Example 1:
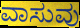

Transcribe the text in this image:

ವಾಸುವು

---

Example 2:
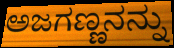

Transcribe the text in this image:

ಅಜಗಣ್ಣನನ್ನು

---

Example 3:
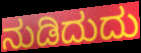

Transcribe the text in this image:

ನುಡಿದುದು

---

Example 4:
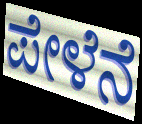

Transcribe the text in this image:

ಪೇಳೆನೆ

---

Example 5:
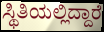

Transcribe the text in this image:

ಸ್ಥಿತಿಯಲ್ಲಿದ್ದಾರೆ